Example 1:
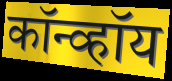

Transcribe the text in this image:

कॉन्व्हॉय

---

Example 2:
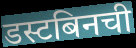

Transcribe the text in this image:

डस्टबिनची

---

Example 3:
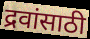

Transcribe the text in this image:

द्रवांसाठी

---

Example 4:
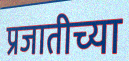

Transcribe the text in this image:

प्रजातीच्या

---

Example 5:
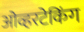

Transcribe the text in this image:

ओव्हरटेकिंग